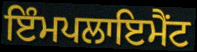
ਇੰਮਪਲਾਇਮੈਂਟ